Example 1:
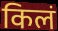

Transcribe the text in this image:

किलं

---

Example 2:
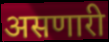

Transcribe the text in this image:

असणारी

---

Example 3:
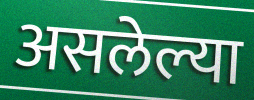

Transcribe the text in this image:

असलेल्या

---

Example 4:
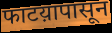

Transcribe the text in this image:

फाटय़ापासून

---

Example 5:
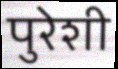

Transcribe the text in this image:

पुरेशी